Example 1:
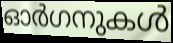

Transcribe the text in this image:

ഓർഗനുകൾ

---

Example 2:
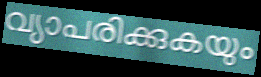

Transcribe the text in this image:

വ്യാപരിക്കുകയും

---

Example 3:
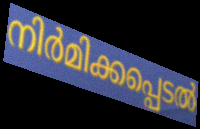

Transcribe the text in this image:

നിർമിക്കപ്പെടൽ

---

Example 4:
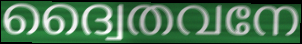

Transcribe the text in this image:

ദ്വൈതവനേ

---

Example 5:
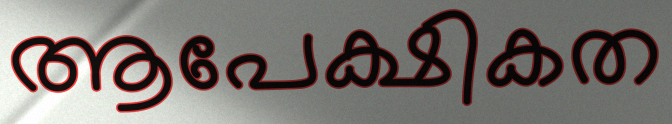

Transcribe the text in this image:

ആപേക്ഷികത